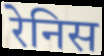
रेनिस